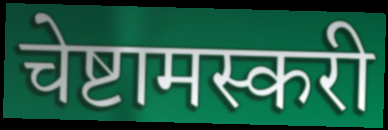
चेष्टामस्करी